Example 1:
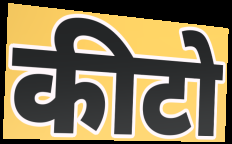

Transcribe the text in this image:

कीटो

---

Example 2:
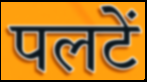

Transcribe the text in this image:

पलटें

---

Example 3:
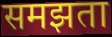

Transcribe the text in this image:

समझता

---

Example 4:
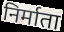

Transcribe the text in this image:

निर्माता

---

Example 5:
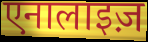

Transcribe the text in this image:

एनालाइज़